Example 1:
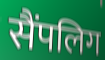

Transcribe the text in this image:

सैंपलिग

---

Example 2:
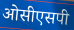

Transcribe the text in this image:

ओसीएसपी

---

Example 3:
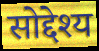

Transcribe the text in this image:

सोद्देश्य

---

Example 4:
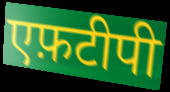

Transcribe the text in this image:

एफ़टीपी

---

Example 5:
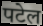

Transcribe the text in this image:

पटेल